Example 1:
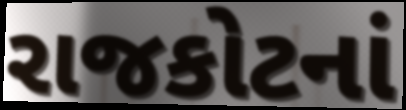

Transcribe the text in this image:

રાજકોટનાં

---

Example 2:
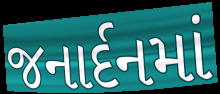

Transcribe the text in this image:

જનાર્દનમાં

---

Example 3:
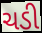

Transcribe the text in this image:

ચડી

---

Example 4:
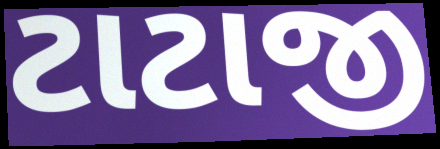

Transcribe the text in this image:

ટાટાજી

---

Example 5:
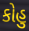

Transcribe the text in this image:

કોહુ